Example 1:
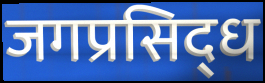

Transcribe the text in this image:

जगप्रसिद्ध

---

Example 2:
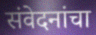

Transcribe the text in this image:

संवेदनांचा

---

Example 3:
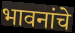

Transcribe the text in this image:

भावनांचे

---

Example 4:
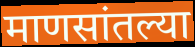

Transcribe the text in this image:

माणसांतल्या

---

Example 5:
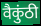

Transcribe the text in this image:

वैकुंठी